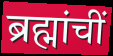
ब्रह्मांचीं